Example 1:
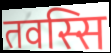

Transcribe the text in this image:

तवस्सि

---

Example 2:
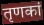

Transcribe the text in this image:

तृणकां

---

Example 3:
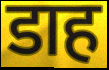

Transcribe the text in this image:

डाह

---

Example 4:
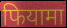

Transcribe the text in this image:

फियामा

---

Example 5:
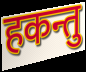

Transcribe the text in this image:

हकन्तु